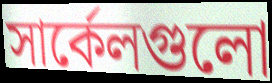
সার্কেলগুলো